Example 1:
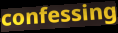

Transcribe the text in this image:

confessing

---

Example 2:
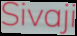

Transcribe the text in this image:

Sivaji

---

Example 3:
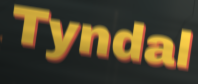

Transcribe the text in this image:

Tyndal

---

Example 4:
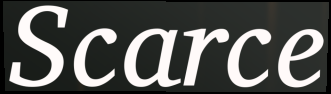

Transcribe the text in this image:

Scarce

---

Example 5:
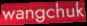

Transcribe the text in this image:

wangchuk